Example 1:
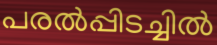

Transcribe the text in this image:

പരൽപ്പിടച്ചിൽ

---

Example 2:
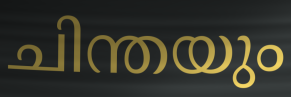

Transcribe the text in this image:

ചിന്തയും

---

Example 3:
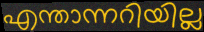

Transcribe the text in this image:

എന്താന്നറിയില്ല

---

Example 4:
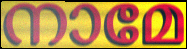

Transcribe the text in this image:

നാമേ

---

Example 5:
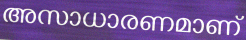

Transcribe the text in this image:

അസാധാരണമാണ്